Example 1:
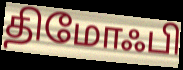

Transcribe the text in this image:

திமோஃபி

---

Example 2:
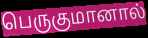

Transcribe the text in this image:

பெருகுமானால்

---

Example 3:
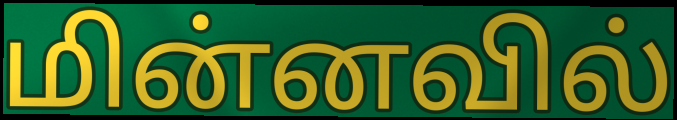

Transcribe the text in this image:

மின்னவில்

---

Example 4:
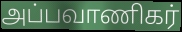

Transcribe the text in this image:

அப்பவாணிகர்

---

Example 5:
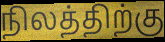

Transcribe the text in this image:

நிலத்திற்கு